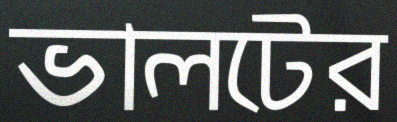
ভালটের